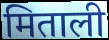
मिताली